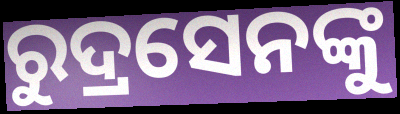
ରୁଦ୍ରସେନଙ୍କୁ